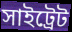
সাইট্রেট